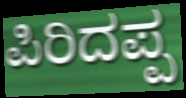
ಪಿರಿದಪ್ಪ